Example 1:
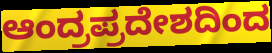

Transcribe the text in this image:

ಆಂದ್ರಪ್ರದೇಶದಿಂದ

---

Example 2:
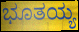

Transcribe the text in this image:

ಭೂತಯ್ಯ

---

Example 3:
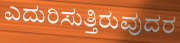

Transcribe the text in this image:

ಎದುರಿಸುತ್ತಿರುವುದರ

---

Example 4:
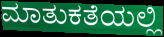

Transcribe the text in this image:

ಮಾತುಕತೆಯಲ್ಲಿ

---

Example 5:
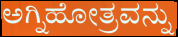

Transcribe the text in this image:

ಅಗ್ನಿಹೋತ್ರವನ್ನು